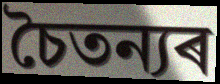
চৈতন্যৰ